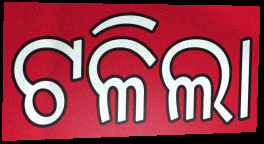
ଟଳିଲା